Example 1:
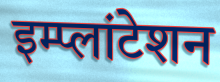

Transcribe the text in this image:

इम्प्लांटेशन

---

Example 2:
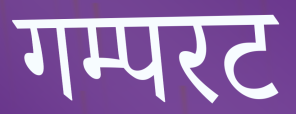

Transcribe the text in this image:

गम्परट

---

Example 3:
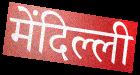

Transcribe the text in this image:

मेंदिल्ली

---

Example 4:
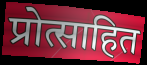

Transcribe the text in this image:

प्रोत्‍साहित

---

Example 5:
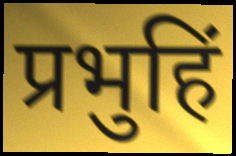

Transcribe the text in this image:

प्रभुहिं